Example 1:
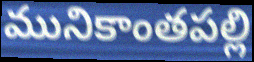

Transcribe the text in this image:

మునికాంతపల్లి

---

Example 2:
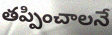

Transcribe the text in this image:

తప్పించాలనే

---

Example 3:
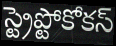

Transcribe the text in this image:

స్ట్రెప్టోకోకస్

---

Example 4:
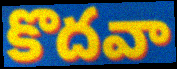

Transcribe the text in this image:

కొదవా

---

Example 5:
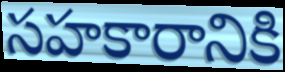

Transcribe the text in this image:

సహకారానికి